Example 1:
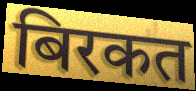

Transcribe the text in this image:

बिरकत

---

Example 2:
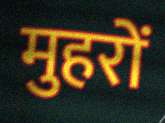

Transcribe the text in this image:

मुहरों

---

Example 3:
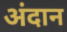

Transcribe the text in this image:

अंदान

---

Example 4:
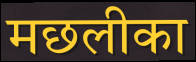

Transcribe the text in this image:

मछलीका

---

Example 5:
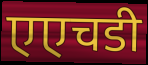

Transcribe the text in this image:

एएचडी